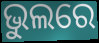
ଭୁଲରେ